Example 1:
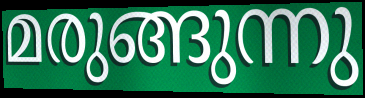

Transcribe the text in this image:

മരുങ്ങുന്നു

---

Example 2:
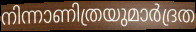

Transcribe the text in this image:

നിന്നാണിത്രയുമാർദ്രത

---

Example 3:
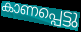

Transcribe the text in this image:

കാണപ്പെട്ടു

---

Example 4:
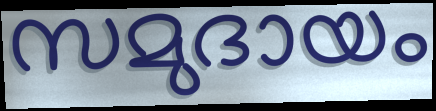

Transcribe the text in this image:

സമുദായം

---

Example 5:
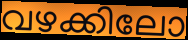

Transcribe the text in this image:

വഴക്കിലോ